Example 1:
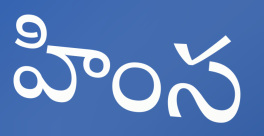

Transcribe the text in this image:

హింస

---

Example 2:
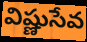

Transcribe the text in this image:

విష్ణుసేవ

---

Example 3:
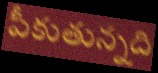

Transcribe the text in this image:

పీకుతున్నది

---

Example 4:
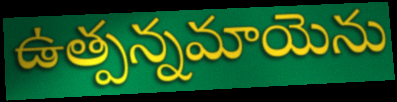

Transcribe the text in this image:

ఉత్పన్నమాయెను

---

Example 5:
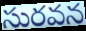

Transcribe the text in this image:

సురవన